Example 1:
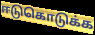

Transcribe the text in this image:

ஈடுகொடுக்க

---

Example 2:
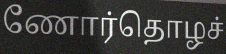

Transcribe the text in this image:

ணோர்தொழச்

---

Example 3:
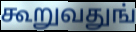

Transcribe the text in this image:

கூறுவதுங்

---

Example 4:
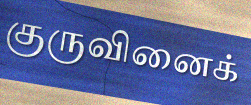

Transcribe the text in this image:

குருவினைக்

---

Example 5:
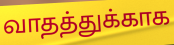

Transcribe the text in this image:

வாதத்துக்காக